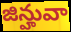
జిన్హువా